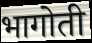
भागोती